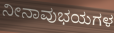
ನೀನಾವುಭಯಗಳ